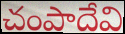
చంపాదేవి